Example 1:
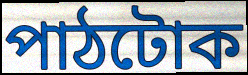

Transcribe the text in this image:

পাঠটোক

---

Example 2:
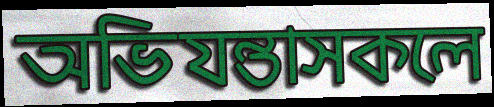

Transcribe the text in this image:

অভিযন্তাসকলে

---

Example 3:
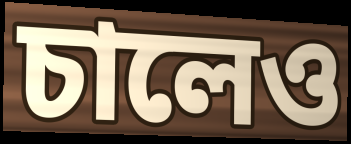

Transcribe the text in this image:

চালেও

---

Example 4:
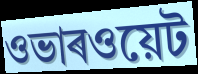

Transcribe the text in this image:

ওভাৰওয়েট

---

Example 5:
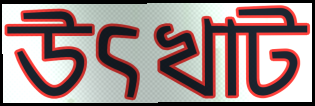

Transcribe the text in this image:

উৎখাট